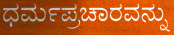
ಧರ್ಮಪ್ರಚಾರವನ್ನು